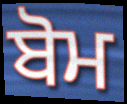
ਬੋਮ